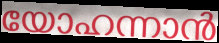
യോഹന്നാൻ